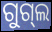
ଗୁଗ୍‌ଲ